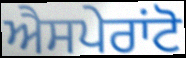
ਐਸਪੇਰਾਂਟੋ